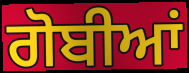
ਗੋਬੀਆਂ